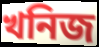
খনিজ